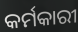
କର୍ମକାରୀ